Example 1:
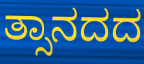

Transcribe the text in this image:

ತ್ಸಾನದದ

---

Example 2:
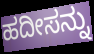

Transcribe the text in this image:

ಹದೀಸನ್ನು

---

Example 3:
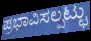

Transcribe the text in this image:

ಪ್ರಭಾವಿಸಲ್ಪಟ್ಟು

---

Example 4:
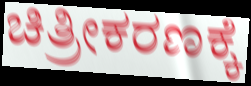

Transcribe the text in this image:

ಚಿತ್ರೀಕರಣಕ್ಕೆ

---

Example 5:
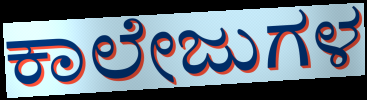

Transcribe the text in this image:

ಕಾಲೇಜುಗಳ